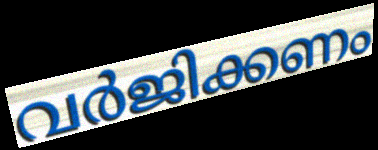
വർജിക്കണം